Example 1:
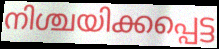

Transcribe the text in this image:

നിശ്ചയിക്കപ്പെട്ട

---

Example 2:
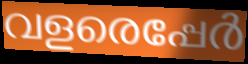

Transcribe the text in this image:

വളരെപ്പേർ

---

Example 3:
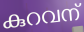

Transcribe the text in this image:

കുറവന്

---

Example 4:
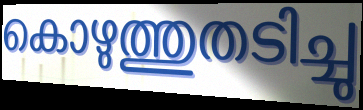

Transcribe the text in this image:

കൊഴുത്തുതടിച്ചു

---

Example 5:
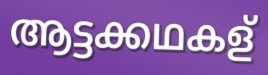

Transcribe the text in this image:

ആട്ടക്കഥകള്